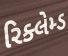
રિક્લેમ્ડ